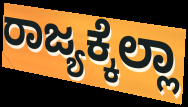
ರಾಜ್ಯಕ್ಕೆಲ್ಲಾ